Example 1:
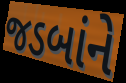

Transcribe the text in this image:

જડબાંને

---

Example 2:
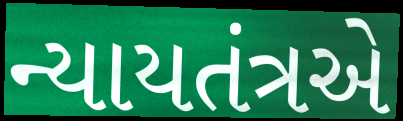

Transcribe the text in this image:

ન્યાયતંત્રએ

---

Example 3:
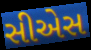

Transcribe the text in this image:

સીએસ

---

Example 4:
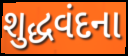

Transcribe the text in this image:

શુદ્ધવંદના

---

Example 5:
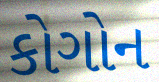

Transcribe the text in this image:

કોગોન